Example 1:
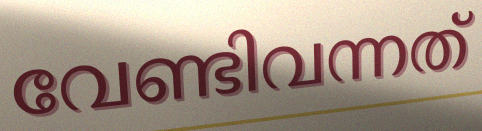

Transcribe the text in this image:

വേണ്ടിവന്നത്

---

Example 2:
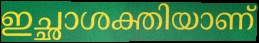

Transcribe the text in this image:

ഇച്ഛാശക്തിയാണ്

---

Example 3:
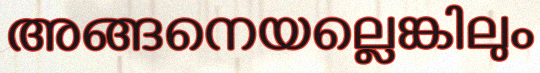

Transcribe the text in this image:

അങ്ങനെയല്ലെങ്കിലും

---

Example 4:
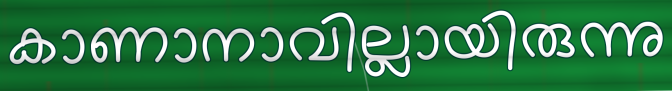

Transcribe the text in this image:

കാണാനാവില്ലായിരുന്നു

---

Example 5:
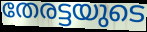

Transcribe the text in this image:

തേരട്ടയുടെ